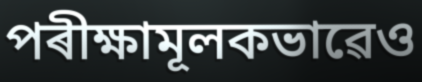
পৰীক্ষামূলকভাৱেও